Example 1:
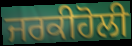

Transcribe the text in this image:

ਜਰਕੀਹੋਲੀ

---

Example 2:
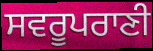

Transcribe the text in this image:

ਸਵਰੂਪਰਾਣੀ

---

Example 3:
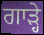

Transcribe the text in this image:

ਗਾੜ੍ਹੇ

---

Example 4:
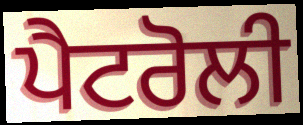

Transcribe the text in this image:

ਪੈਟਰੋਲੀ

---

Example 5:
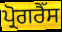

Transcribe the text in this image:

ਪ੍ਰੋਗਰੈੱਸ